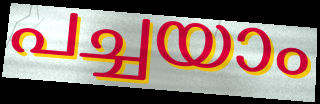
പച്ചയാം